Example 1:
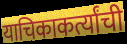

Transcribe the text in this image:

याचिकाकर्त्यांची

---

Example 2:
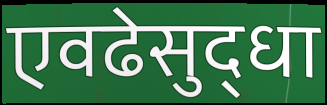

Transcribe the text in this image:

एवढेसुद्धा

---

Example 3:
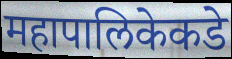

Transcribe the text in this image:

महापालिकेकडे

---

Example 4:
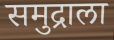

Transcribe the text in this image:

समुद्राला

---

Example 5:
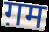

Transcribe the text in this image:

ग़म